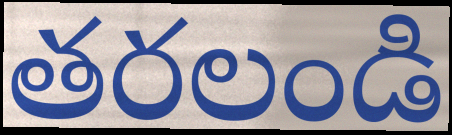
తరలండి